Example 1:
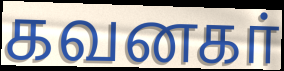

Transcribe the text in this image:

கவனகர்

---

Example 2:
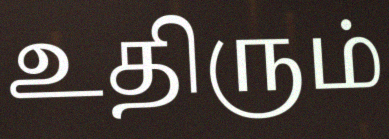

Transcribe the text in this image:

உதிரும்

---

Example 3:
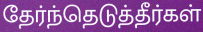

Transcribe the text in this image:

தேர்ந்தெடுத்தீர்கள்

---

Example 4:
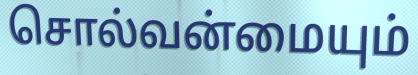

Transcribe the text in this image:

சொல்வன்மையும்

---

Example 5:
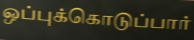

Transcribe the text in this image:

ஒப்புக்கொடுப்பார்